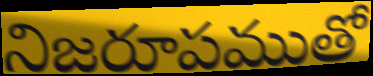
నిజరూపముతో